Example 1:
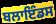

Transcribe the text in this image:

ਬਲਾਇੰਡਸ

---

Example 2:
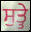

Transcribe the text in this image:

ਸੁਤ੍ਤੇ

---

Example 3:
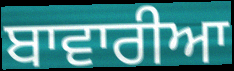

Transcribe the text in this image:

ਬਾਵਾਰੀਆ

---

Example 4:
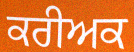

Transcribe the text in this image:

ਕਰੀਅਕ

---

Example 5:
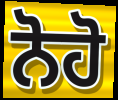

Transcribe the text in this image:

ਨੋਹੋ